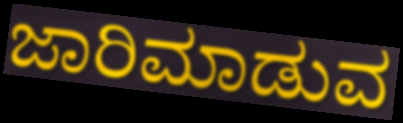
ಜಾರಿಮಾಡುವ